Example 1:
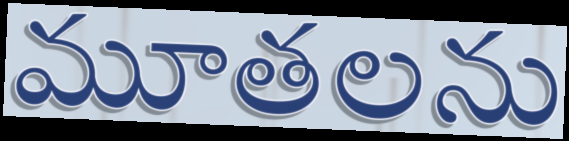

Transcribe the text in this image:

మూతలను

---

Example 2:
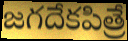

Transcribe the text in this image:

జగదేకపిత్రే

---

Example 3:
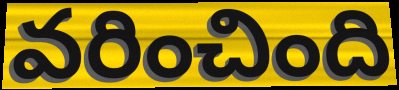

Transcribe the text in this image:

వరించింది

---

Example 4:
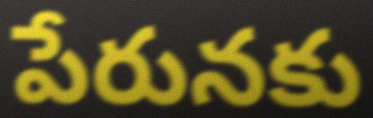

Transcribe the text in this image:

పేరునకు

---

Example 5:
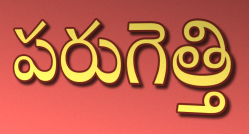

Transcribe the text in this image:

పరుగెత్తి